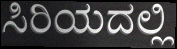
ಸಿರಿಯದಲ್ಲಿ